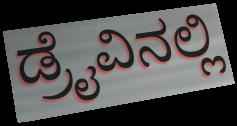
ಡ್ರೈವಿನಲ್ಲಿ